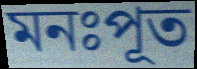
মনঃপূত